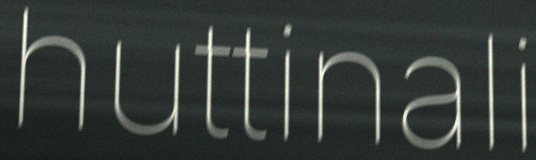
huttinali